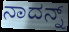
ನಾದನ್ನ್